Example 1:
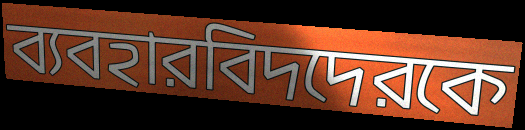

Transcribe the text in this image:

ব্যবহারবিদদেরকে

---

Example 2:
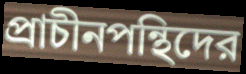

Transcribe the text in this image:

প্রাচীনপন্থিদের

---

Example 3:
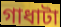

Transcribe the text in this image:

গাধাটা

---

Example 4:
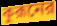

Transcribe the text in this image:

কুরূনের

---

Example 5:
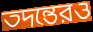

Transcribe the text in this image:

তদন্তেরও